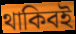
থাকিবই